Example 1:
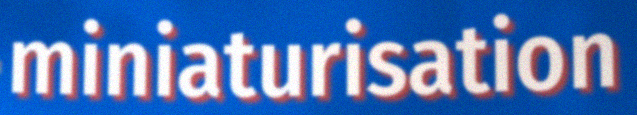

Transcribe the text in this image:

miniaturisation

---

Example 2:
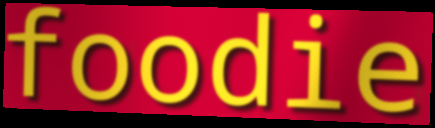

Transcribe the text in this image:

foodie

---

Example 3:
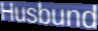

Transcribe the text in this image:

Husbund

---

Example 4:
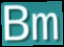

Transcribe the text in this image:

Bm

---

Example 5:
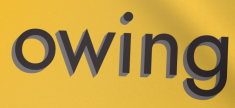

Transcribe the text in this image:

owing